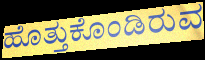
ಹೊತ್ತುಕೊಂಡಿರುವ